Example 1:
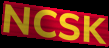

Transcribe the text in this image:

NCSK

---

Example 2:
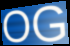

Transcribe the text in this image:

OG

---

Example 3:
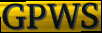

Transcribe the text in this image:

GPWS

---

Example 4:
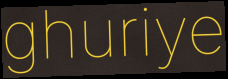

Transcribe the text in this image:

ghuriye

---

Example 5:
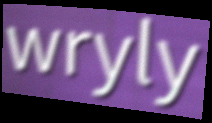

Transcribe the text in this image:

wryly